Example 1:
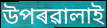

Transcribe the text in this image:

উপৰৱালাই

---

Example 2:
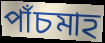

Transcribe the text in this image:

পাঁচমাহ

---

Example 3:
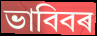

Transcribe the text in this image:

ভাবিবৰ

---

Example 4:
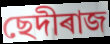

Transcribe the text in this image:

ছেদীৰাজ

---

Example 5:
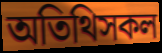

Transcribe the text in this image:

অতিথিসকল